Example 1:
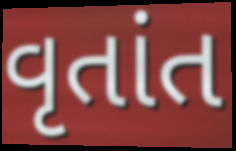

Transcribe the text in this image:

વૃતાંત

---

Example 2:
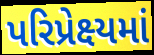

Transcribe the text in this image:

પરિપ્રેક્ષ્યમાં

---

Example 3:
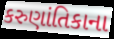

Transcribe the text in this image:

કરુણાંતિકાના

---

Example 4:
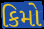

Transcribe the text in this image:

કિમો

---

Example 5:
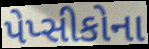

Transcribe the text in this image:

પેપ્સીકોના